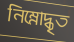
নিম্নোদ্ধৃত